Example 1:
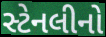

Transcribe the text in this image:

સ્ટેનલીનો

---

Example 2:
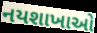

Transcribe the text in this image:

નયશાખાઓ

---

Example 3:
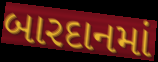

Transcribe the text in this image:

બારદાનમાં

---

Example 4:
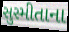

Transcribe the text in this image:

સુસ્મીતાના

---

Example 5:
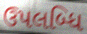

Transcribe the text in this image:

ઉપલબ્ધિ